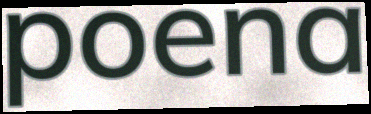
poena